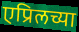
एप्रिलच्या